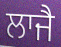
ਲਾਜੈ